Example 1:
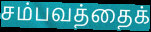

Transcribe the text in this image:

சம்பவத்தைக்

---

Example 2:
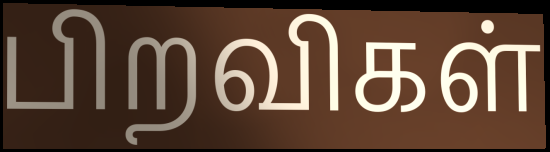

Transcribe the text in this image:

பிறவிகள்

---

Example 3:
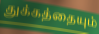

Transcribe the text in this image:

துக்கத்தையும்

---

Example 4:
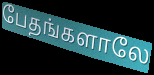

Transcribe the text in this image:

பேதங்களாலே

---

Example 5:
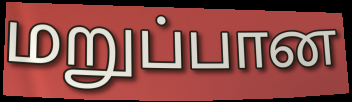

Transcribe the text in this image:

மறுப்பான